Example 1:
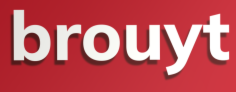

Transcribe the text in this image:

brouyt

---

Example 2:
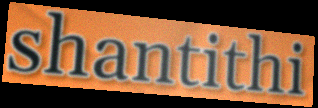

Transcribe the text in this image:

shantithi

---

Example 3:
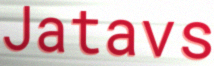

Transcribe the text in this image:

Jatavs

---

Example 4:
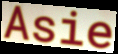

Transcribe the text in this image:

Asie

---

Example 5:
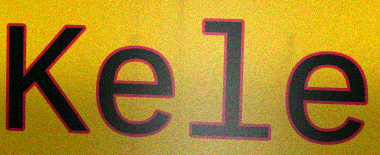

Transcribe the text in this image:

Kele